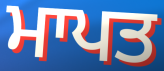
ਮਾਪਤ